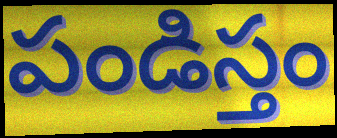
పండిస్తం